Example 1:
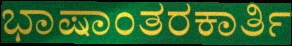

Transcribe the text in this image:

ಭಾಷಾಂತರಕಾರ್ತಿ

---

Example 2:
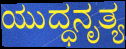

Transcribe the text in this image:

ಯುದ್ಧನೃತ್ಯ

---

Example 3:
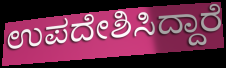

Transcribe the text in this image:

ಉಪದೇಶಿಸಿದ್ದಾರೆ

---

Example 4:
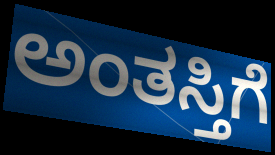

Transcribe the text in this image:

ಅಂತಸ್ತಿಗೆ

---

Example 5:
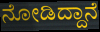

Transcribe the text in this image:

ನೋಡಿದ್ದಾನೆ